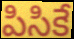
పిసికే